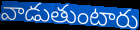
వాడుతుంటారు